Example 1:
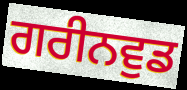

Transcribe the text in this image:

ਗਰੀਨਵੁਡ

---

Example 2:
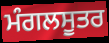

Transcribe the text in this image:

ਮੰਗਲਸੂਤਰ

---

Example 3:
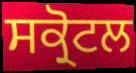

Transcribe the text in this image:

ਸਕ੍ਰੋਟਲ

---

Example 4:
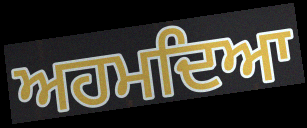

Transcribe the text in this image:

ਅਹਮਦਿਆ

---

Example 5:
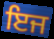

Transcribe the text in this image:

ਇਜ